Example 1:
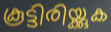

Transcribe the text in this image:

കൂട്ടിരിയ്ക്കുക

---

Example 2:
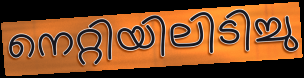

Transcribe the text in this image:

നെറ്റിയിലിടിച്ചു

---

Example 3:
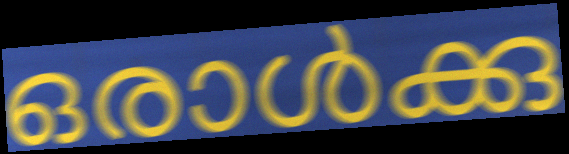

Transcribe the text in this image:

ഒരാൾക്കു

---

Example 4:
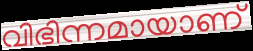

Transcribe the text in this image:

വിഭിന്നമായാണ്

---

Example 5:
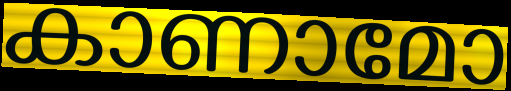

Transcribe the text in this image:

കാണാമോ